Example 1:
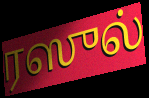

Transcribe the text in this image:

ரஸுல்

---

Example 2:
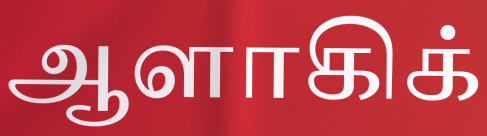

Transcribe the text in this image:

ஆளாகிக்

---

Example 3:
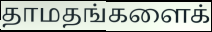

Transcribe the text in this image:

தாமதங்களைக்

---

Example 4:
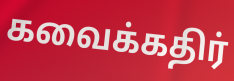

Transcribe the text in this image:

கவைக்கதிர்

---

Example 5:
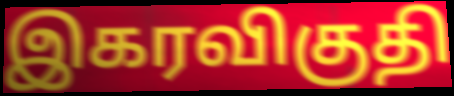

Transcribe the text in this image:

இகரவிகுதி